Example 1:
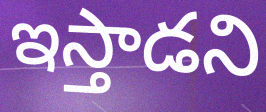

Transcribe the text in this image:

ఇస్తాడని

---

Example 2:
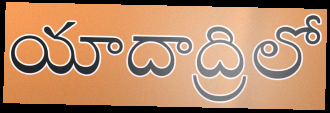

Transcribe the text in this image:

యాదాద్రిలో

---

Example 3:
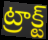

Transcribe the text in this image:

ట్రాక్ట్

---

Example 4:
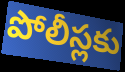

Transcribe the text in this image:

పోలీస్లకు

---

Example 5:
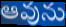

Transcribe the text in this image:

ఆవును